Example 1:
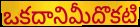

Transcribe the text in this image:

ఒకదానిమీదొకటి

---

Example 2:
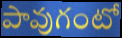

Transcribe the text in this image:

పావుగంటో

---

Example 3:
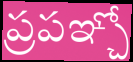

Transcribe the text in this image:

ప్రపఞ్చో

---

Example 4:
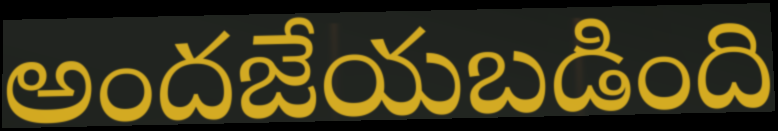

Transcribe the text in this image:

అందజేయబడింది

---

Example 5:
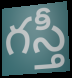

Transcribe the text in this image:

గస్తీ